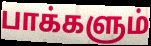
பாக்களும்